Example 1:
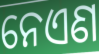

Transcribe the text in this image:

ନେଏଣ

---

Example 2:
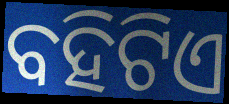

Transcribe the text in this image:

ବହିଟିଏ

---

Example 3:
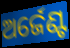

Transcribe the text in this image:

ଅର୍ଜେଣ୍ଟ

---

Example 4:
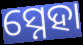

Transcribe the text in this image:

ସ୍ନେହା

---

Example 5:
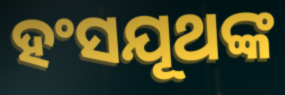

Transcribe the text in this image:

ହଂସଯୂଥଙ୍କ